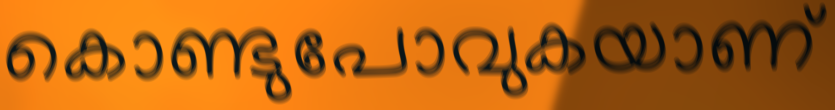
കൊണ്ടുപോവുകയാണ്